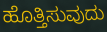
ಹೊತ್ತಿಸುವುದು